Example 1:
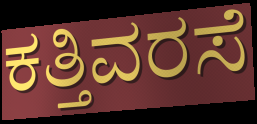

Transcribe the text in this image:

ಕತ್ತಿವರಸೆ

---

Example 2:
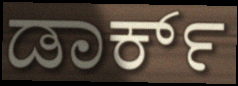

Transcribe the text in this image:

ಡಾರ್ಕ್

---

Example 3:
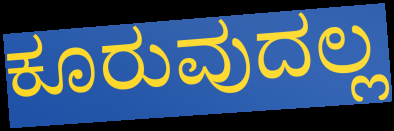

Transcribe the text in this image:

ಕೂರುವುದಲ್ಲ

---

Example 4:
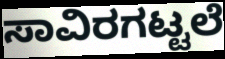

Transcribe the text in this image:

ಸಾವಿರಗಟ್ಟಲೆ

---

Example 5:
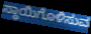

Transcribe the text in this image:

ಸ್ಥಾಯಿಗೊಳಿಸುವ